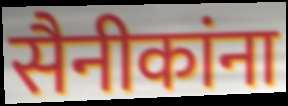
सैनीकांना